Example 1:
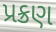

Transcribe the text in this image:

પ્રક્રણ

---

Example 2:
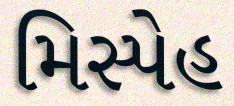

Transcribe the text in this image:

મિસ્પેહ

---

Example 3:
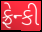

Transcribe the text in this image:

ફ્રેન્કી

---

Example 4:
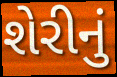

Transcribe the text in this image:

શેરીનું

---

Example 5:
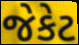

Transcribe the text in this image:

જેકેટ